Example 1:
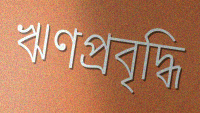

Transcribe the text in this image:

ঋণপ্রবৃদ্ধি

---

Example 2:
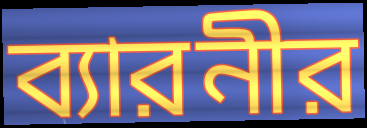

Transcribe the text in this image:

ব্যারনীর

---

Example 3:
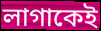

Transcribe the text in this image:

লাগাকেই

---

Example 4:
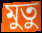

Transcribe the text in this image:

মুতু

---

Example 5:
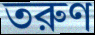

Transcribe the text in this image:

তরুণ